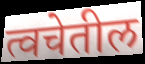
त्वचेतील